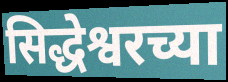
सिद्धेश्वरच्या